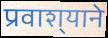
प्रवाश्याने